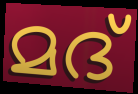
മദ്